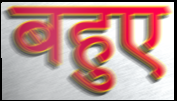
बहुए